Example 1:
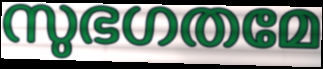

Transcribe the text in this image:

സുഭഗതമേ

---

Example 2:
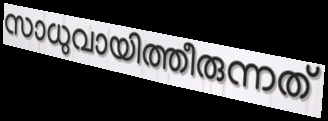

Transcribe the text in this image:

സാധുവായിത്തീരുന്നത്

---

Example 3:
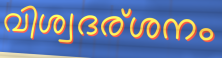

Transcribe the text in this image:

വിശ്വദര്ശനം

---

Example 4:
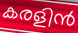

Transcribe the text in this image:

കരളിൻ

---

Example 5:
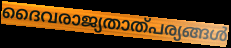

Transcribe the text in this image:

ദൈവരാജ്യതാത്പര്യങ്ങൾ